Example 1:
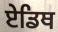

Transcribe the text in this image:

ਏਡਿਥ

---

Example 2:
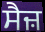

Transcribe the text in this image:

ਸੈਜ਼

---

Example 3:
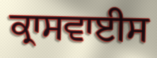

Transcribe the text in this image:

ਕ੍ਰਾਸਵਾਈਸ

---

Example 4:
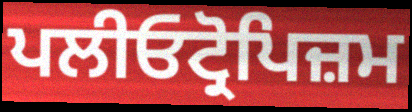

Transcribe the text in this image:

ਪਲੀਓਟ੍ਰੋਪਿਜ਼ਮ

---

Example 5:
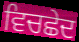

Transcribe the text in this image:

ਵਿਚਛੇਦ